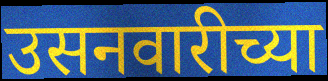
उसनवारीच्या